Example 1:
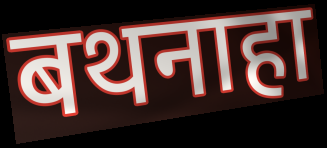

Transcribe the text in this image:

बथनाहा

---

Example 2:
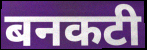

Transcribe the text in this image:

बनकटी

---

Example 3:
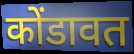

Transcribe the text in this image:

कोंडावत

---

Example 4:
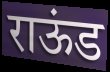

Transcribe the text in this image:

राऊंड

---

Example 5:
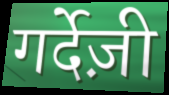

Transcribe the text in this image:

गर्देज़ी